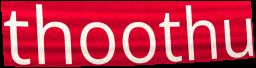
thoothu